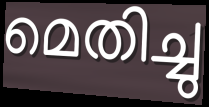
മെതിച്ചു